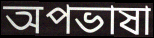
অপভাষা